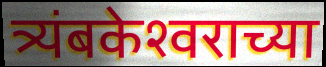
त्र्यंबकेश्वराच्या